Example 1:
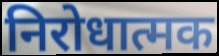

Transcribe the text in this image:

निरोधात्मक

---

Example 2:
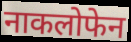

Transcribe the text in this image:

नाकलोफेन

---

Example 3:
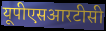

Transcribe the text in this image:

यूपीएसआरटीसी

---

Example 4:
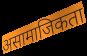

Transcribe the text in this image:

असामाजिकता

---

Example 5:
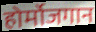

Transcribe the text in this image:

होर्मोजगान